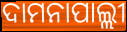
ଦାମନାପାଲ୍ଲୀ